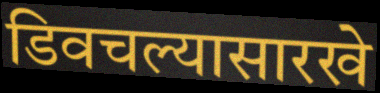
डिवचल्यासारखे